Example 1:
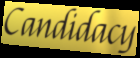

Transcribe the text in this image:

Candidacy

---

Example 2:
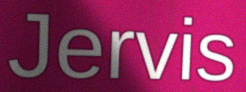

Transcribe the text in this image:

Jervis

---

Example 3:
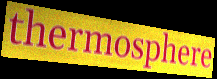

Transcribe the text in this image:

thermosphere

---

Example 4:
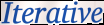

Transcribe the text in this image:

Iterative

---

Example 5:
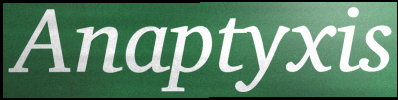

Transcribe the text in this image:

Anaptyxis